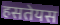
हसतेयस